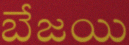
బేజయి